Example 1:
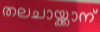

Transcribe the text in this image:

തലചായ്ക്കാന്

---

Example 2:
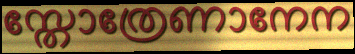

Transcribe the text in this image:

സ്തോത്രേണാനേന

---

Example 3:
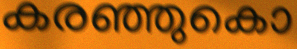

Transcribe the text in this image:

കരഞ്ഞുകൊ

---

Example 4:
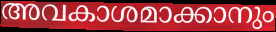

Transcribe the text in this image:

അവകാശമാക്കാനും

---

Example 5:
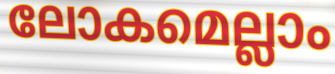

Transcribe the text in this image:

ലോകമെല്ലാം